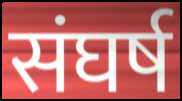
संघर्ष